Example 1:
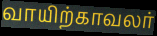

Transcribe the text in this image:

வாயிற்காவலர்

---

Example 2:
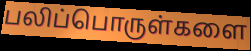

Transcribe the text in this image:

பலிப்பொருள்களை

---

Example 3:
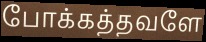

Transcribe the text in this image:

போக்கத்தவளே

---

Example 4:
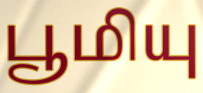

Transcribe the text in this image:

பூமியு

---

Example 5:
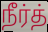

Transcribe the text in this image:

நீர்த்